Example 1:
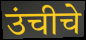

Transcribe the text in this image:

उंचीचे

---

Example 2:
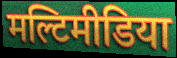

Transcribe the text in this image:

मल्टिमीडिया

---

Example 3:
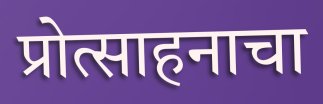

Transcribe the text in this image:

प्रोत्साहनाचा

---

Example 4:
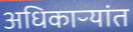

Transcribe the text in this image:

अधिकाऱ्यांत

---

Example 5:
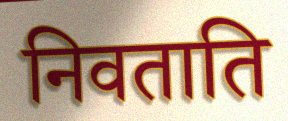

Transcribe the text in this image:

निवताति